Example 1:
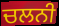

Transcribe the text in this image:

ਚਲਨੀ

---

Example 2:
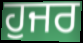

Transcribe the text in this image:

ਹੁਜਰ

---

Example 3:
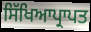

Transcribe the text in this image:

ਸਿੱਖਿਆਪ੍ਰਾਪਤ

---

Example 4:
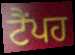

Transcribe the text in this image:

ਟੈਂਪਹ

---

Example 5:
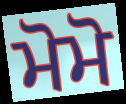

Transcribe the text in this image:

ਮੋਮੋ